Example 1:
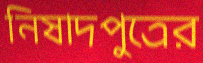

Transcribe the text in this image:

নিষাদপুত্রের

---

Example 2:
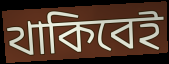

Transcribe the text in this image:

থাকিবেই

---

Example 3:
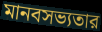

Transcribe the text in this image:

মানবসভ্যতার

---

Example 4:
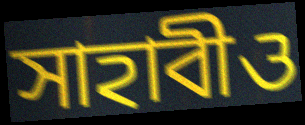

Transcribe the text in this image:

সাহাবীও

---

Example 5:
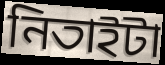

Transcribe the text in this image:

নিতাইটা